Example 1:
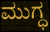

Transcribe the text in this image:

ಮುಗ್ಧ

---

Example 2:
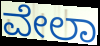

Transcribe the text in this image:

ವೇಲಾ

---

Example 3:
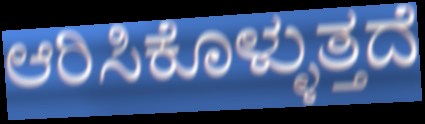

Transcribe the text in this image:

ಆರಿಸಿಕೊಳ್ಳುತ್ತದೆ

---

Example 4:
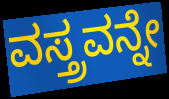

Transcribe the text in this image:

ವಸ್ತ್ರವನ್ನೇ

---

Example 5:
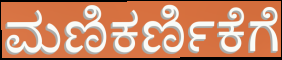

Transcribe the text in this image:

ಮಣಿಕರ್ಣಿಕೆಗೆ